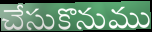
చేసుకొనుము